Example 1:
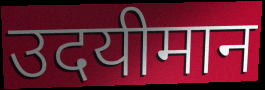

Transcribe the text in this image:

उदयीमान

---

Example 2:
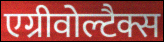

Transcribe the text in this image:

एग्रीवोल्टैक्स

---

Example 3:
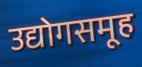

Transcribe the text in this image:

उद्योगसमूह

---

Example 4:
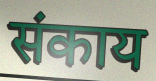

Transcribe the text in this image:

संकाय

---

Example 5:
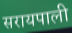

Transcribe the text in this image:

सरायपाली